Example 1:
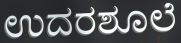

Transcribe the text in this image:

ಉದರಶೂಲೆ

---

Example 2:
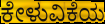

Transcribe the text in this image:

ಕೇಳುವಿಕೆಯ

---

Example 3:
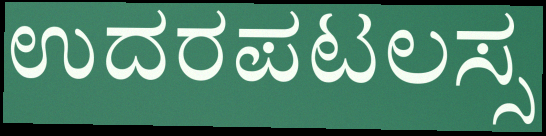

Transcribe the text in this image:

ಉದರಪಟಲಸ್ಸ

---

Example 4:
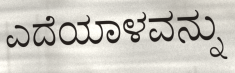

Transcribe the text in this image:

ಎದೆಯಾಳವನ್ನು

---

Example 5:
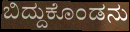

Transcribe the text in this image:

ಬಿದ್ದುಕೊಂಡನು